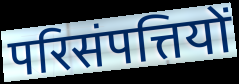
परिसंपत्तियों